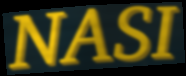
NASI